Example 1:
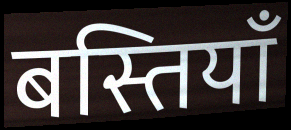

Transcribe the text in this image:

बस्तियाँ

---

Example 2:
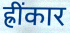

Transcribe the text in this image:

ह्रींकार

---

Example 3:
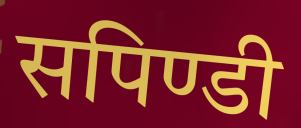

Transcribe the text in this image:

सपिण्डी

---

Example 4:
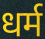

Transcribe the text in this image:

धर्म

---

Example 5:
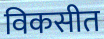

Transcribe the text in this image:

विकसीत